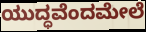
ಯುದ್ಧವೆಂದಮೇಲೆ